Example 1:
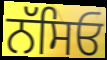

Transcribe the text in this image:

ਨੱਸਿਓ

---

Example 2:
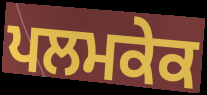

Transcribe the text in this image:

ਪਲਮਕੇਕ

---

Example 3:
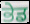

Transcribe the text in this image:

ਭੇਡ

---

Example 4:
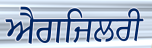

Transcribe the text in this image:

ਐਗਜਿਲਰੀ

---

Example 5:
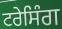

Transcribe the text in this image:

ਟਰੇਸਿੰਗ